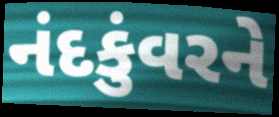
નંદકુંવરને